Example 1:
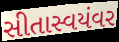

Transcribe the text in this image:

સીતાસ્વયંવર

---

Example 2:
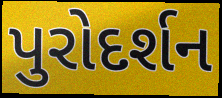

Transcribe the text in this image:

પુરોદર્શન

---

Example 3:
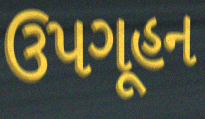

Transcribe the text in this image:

ઉપગૂહન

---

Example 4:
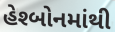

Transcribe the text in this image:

હેશ્બોનમાંથી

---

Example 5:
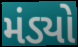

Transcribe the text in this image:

મંડ્યો